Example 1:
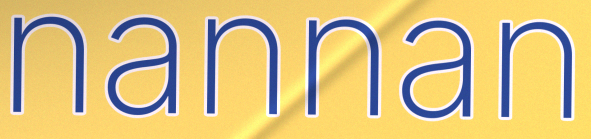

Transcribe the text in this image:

nannan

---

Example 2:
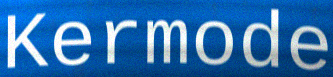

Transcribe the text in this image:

Kermode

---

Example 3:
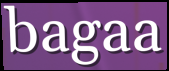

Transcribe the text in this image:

bagaa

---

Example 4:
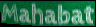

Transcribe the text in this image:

Mahabat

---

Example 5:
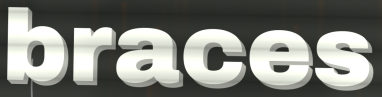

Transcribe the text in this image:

braces